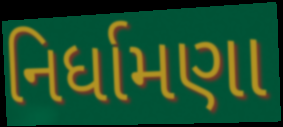
નિર્ધામણા